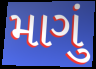
માગું